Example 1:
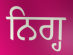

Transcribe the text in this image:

ਨਿਗ੍ਹ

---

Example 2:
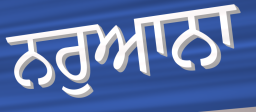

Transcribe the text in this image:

ਨਰੁਆਨਾ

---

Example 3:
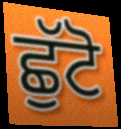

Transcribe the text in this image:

ਛੁੱਟੋ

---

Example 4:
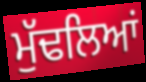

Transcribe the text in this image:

ਮੁੱਢਲਿਆਂ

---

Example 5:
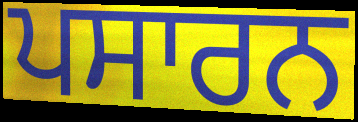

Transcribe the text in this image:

ਪਸਾਰਨ